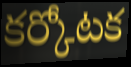
కర్కోటక